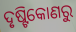
ଦୃଷ୍ଟିକୋଣରୁ